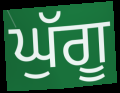
ਘੁੱਗੂ